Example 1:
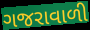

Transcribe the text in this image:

ગજરાવાળી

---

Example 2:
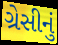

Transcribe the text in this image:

ગ્રેસીનું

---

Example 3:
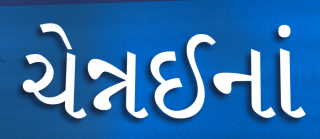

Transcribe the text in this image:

ચેન્નઈનાં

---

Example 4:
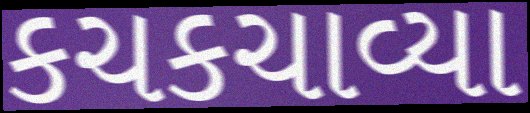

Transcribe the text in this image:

કચકચાવ્યા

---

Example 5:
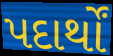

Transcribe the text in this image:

પદાર્થોં